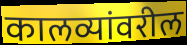
कालव्यांवरील